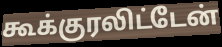
கூக்குரலிட்டேன்